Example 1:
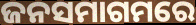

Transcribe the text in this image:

ଜନସମାଗମରେ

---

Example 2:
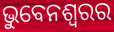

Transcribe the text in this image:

ଭୁବେନଶ୍ବରର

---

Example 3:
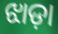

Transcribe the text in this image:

ଝାଡ଼ା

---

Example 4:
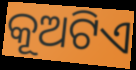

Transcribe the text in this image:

କୂଅଟିଏ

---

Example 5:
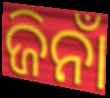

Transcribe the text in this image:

ଜିନାଁ